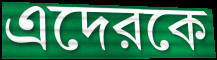
এদেরকে